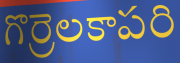
గొర్రెలకాపరి